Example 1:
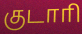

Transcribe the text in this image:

குடாரி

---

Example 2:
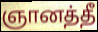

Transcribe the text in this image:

ஞானத்தீ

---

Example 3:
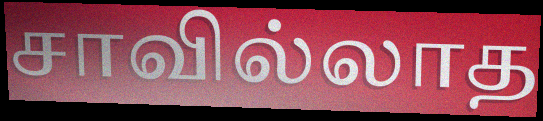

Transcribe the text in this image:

சாவில்லாத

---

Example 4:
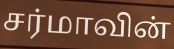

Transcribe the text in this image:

சர்மாவின்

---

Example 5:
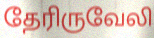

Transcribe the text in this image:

தேரிருவேலி